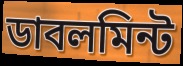
ডাবলমিন্ট